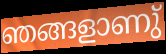
ഞങ്ങളാണു്